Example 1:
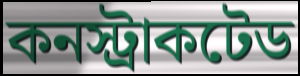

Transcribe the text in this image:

কনস্ট্রাকটেড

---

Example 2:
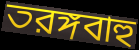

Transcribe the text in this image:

তরঙ্গবাহু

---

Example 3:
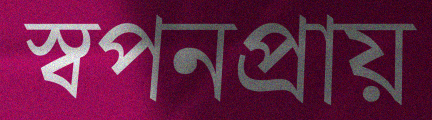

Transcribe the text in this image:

স্বপনপ্রায়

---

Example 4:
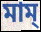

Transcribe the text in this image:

মাম্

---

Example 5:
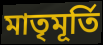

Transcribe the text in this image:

মাতৃমূর্তি